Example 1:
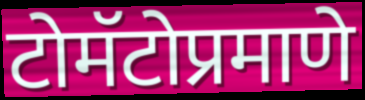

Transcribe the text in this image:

टोमॅटोप्रमाणे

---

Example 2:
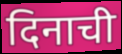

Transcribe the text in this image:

दिनाची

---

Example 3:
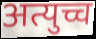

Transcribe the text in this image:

अत्युच्च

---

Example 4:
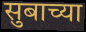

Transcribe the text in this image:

सुबाच्या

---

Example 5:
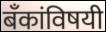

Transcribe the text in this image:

बँकांविषयी